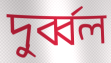
দুর্ব্বল